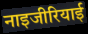
नाइजीरियाई